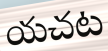
యచట